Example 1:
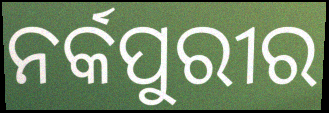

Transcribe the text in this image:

ନର୍କପୁରୀର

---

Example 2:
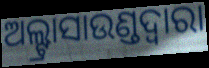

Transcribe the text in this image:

ଅଲ୍ଟ୍ରାସାଉଣ୍ଡଦ୍ୱାରା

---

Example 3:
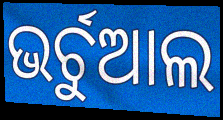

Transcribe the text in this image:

ଭର୍ଚୁଆଲ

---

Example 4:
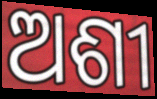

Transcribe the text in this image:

ଅଶୀ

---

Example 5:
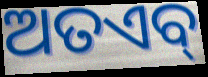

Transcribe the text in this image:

ଅତଏବ୍